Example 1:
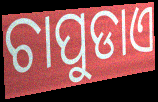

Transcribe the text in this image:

ଚାପୁଡାଏ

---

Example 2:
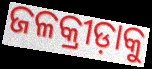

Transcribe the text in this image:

ଜଳକ୍ରୀଡ଼ାକୁ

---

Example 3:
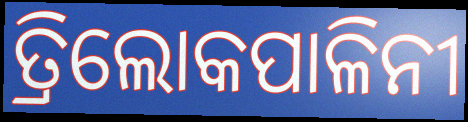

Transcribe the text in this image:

ତ୍ରିଲୋକପାଳିନୀ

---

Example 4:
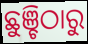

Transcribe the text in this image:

ଛୁଞ୍ଚିଠାରୁ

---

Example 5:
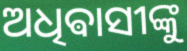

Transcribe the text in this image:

ଅଧିଵାସୀଙ୍କୁ